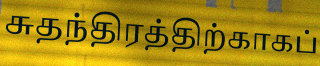
சுதந்திரத்திற்காகப்